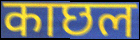
काछल